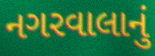
નગરવાલાનું